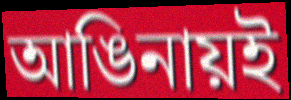
আঙিনায়ই